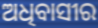
ଅଧିବାସୀର